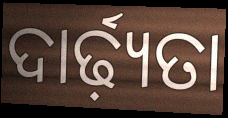
ଦାର୍ଢ଼୍ୟତା